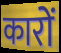
कारों